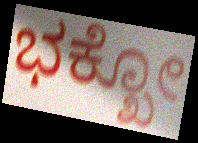
ಭಕ್ಖೋ